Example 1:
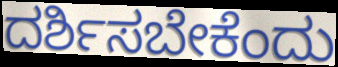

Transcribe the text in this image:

ದರ್ಶಿಸಬೇಕೆಂದು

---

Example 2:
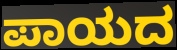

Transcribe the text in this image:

ಪಾಯದ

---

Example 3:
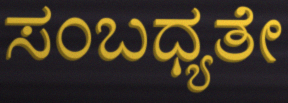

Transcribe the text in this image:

ಸಂಬಧ್ಯತೇ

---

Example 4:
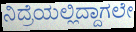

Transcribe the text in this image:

ನಿದ್ರೆಯಲ್ಲಿದ್ದಾಗಲೇ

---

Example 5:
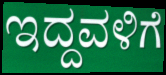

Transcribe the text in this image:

ಇದ್ದವಳಿಗೆ